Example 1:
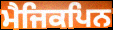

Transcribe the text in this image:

ਮੈਜਿਕਪਿਨ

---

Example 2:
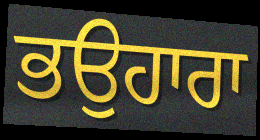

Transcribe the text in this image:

ਭਉਹਾਰਾ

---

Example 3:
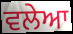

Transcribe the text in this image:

ਵਲੇਆ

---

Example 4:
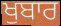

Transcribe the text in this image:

ਖੁਬਾਰ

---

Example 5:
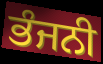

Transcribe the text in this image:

ਭੰਜਨੀ